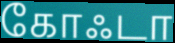
கோஃடா